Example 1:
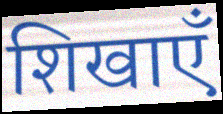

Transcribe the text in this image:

शिखाएँ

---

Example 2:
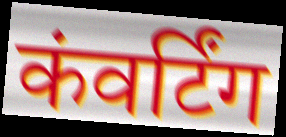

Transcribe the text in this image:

कंवर्टिंग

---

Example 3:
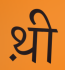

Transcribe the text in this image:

थ़ी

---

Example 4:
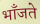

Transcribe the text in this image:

भाँजते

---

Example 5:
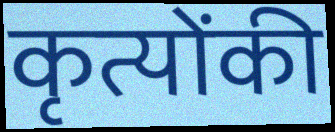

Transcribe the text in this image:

कृत्योंकी